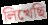
লিখেছি